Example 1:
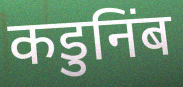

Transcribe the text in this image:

कडुनिंब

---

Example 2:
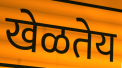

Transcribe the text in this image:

खेळतेय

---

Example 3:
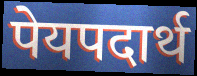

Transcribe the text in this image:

पेयपदार्थ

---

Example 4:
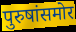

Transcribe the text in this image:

पुरुषांसमोर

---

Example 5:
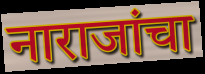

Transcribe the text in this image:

नाराजांचा